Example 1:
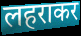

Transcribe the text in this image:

लहराकर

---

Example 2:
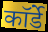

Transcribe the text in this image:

कॉर्डे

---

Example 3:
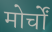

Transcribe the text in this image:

मोर्चों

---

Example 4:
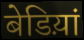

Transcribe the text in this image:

बेडिय़ां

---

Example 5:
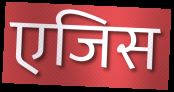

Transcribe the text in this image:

एजिस